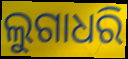
ଲୁଗାଧରି